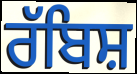
ਰੱਬਿਸ਼